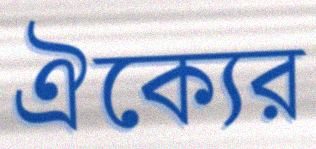
ঐক্যের